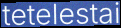
tetelestai